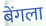
बेंगला